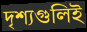
দৃশ্যগুলিই